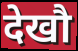
देखौ